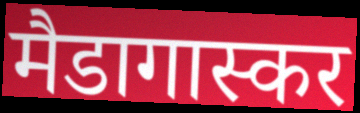
मैडागास्कर